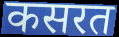
कसरत